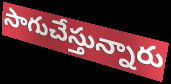
సాగుచేస్తున్నారు